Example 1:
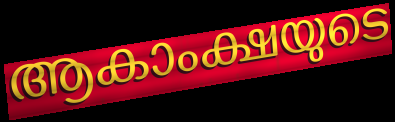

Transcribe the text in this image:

ആകാംക്ഷയുടെ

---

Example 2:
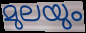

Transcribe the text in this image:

മുലയും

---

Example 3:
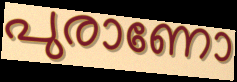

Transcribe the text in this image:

പുരാണോ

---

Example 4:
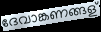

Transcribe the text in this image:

ദേവാങ്കണങ്ങള്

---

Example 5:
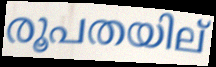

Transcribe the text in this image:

രൂപതയില്